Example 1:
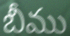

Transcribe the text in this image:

బీము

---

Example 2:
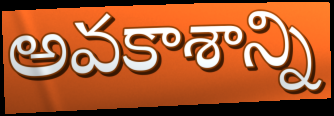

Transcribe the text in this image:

అవకాశాన్ని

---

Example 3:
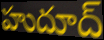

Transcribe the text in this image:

హుదూద్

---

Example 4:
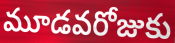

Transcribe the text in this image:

మూడవరోజుకు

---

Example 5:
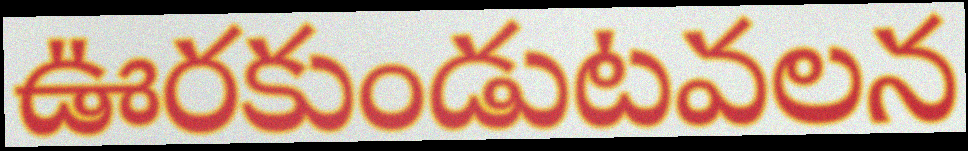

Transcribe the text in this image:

ఊరకుండుటవలన